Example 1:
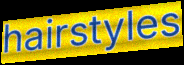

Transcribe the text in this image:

hairstyles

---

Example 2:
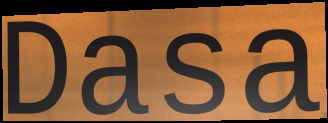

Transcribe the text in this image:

Dasa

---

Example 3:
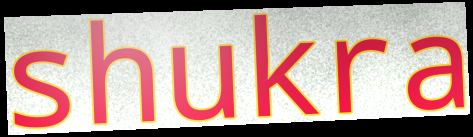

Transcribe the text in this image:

shukra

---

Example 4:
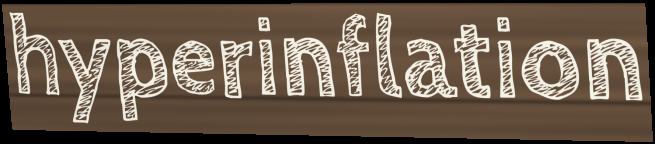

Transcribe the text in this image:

hyperinflation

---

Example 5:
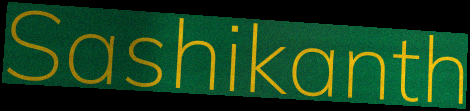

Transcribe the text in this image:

Sashikanth